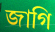
জাগি